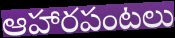
ఆహారపంటలు